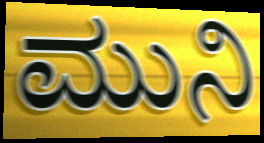
ಮುನಿ